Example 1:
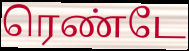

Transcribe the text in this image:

ரெண்டே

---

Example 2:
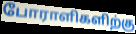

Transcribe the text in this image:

போராளிகளிற்கு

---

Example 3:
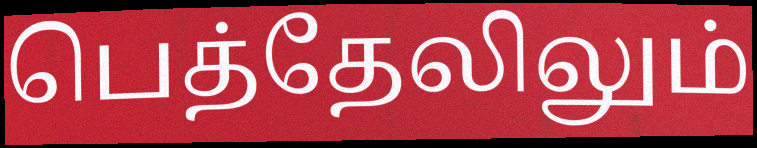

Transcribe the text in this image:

பெத்தேலிலும்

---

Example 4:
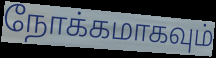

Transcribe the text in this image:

நோக்கமாகவும்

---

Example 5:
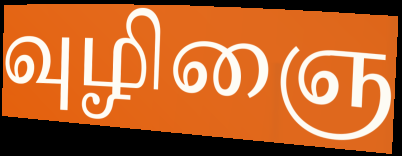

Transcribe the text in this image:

வுழிஞை